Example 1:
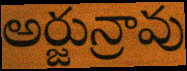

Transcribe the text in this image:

అర్జున్రావు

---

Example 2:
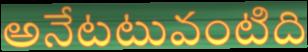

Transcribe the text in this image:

అనేటటువంటిది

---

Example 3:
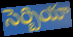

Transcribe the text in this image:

సెర్బియా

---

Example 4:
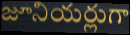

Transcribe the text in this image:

జూనియర్లుగా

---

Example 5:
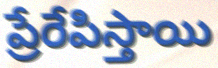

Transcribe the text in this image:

ప్రేరేపిస్తాయి